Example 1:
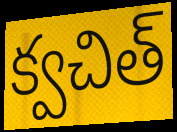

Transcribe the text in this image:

క్వచిత్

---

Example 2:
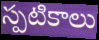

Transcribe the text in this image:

స్పటికాలు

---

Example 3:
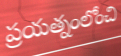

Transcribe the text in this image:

ప్రయత్నంలోంచి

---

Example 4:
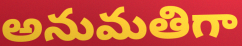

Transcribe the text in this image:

అనుమతిగా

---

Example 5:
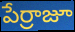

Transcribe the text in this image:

పేర్రాజూ